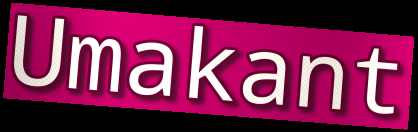
Umakant